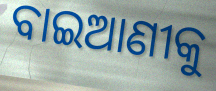
ବାଇଆଣୀକୁ